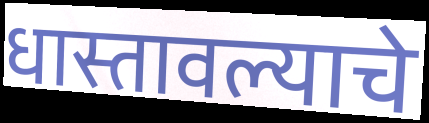
धास्तावल्याचे